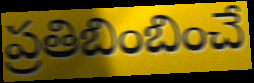
ప్రతిబింబించే